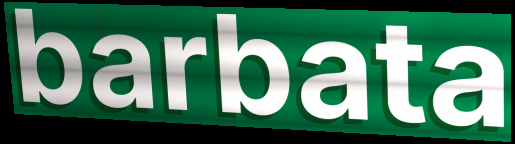
barbata